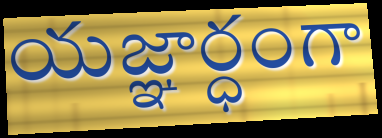
యజ్ఞార్ధంగా